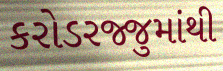
કરોડરજ્જુમાંથી